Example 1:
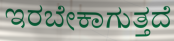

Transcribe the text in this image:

ಇರಬೇಕಾಗುತ್ತದೆ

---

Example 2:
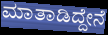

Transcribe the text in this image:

ಮಾತಾಡಿದ್ದೇನೆ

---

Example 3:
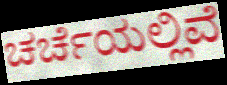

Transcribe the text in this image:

ಚರ್ಚೆಯಲ್ಲಿವೆ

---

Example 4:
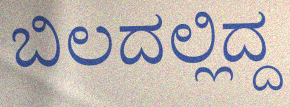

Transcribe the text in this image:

ಬಿಲದಲ್ಲಿದ್ದ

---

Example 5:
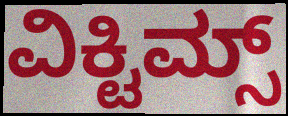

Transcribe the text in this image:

ವಿಕ್ಟಿಮ್ಸ್